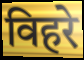
विहरे